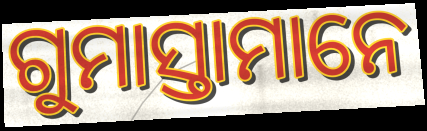
ଗୁମାସ୍ତାମାନେ